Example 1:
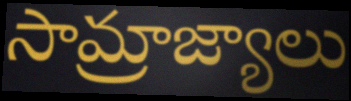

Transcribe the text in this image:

సామ్రాజ్యాలు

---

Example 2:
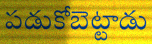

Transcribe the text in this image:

పడుకోబెట్టాడు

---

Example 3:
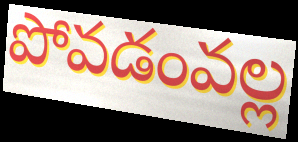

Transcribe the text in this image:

పోవడంవల్ల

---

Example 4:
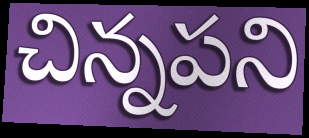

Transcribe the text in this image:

చిన్నపని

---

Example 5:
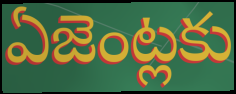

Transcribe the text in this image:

ఏజెంట్లకు